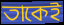
তাকেই